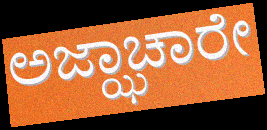
ಅಜ್ಝಾಚಾರೇ